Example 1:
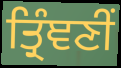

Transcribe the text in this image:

ਤ੍ਰਿੰਞਣੀਂ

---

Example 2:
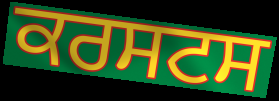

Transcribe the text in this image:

ਕਰਸਟਸ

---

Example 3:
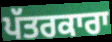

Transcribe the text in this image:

ਪੱਤਰਕਾਰਾ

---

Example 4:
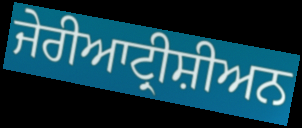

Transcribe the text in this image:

ਜੇਰੀਆਟ੍ਰੀਸ਼ੀਅਨ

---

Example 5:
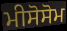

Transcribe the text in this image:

ਮੀਸੋਸੋਮ